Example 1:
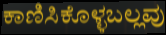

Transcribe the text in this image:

ಕಾಣಿಸಿಕೊಳ್ಳಬಲ್ಲವು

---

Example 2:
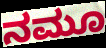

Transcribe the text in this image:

ನಮೂ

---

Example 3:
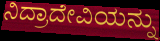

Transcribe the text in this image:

ನಿದ್ರಾದೇವಿಯನ್ನು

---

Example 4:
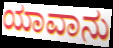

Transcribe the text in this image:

ಯಾವಾನು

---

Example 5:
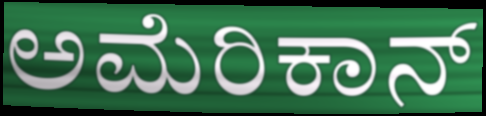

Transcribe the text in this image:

ಅಮೆರಿಕಾನ್